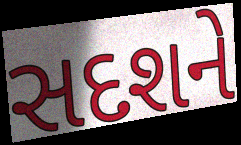
સદશને